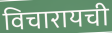
विचारायची